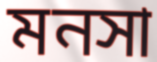
মনসা